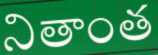
నితాంత